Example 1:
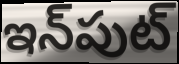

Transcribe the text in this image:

ఇన్‌పుట్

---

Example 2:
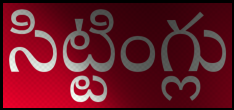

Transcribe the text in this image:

సిట్టింగ్లు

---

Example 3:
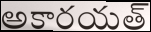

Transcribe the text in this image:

అకారయత్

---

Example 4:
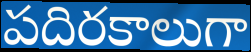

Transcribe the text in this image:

పదిరకాలుగా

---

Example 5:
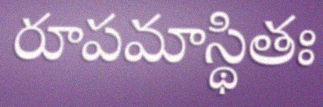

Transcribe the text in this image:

రూపమాస్థితః